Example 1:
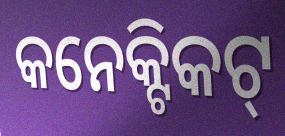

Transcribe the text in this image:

କନେକ୍ଟିକଟ୍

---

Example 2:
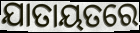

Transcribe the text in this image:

ଯାତାୟତରେ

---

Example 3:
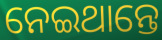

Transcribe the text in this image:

ନେଇଥାନ୍ତେ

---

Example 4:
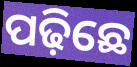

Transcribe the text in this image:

ପଢ଼ିଛେ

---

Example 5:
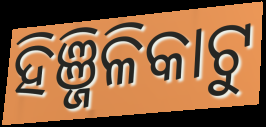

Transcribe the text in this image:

ହିଞ୍ଜିଳିକାଟୁ